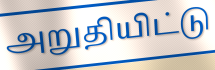
அறுதியிட்டு